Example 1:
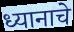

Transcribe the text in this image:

ध्यानाचे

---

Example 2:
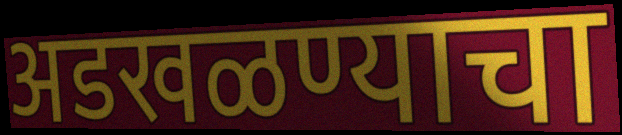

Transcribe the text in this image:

अडखळण्याचा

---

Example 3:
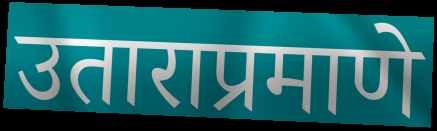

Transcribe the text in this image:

उताराप्रमाणे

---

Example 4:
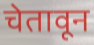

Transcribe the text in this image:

चेतावून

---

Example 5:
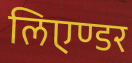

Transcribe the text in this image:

लिएण्डर